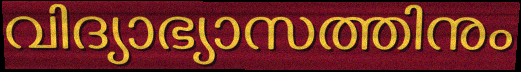
വിദ്യാഭ്യാസത്തിനും